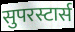
सुपरस्टार्स